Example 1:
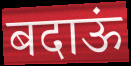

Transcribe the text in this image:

बदाऊं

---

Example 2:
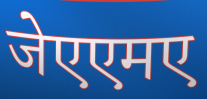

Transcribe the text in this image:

जेएएमए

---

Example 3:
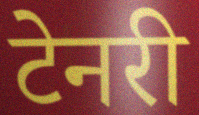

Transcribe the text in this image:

टेनरी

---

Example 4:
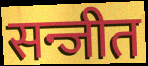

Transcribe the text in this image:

सन्जीत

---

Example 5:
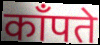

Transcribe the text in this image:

काँपते